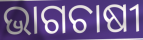
ଭାଗଚାଷୀ